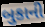
બુકાની